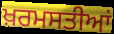
ਖ਼ਰਮਸਤੀਆਂ